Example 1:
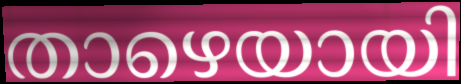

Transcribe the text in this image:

താഴെയായി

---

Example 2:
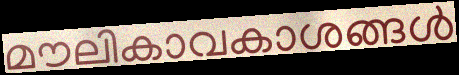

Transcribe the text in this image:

മൗലികാവകാശങ്ങൾ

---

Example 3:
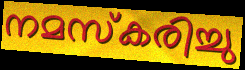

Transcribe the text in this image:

നമസ്കരിച്ചു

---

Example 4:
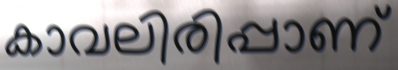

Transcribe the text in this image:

കാവലിരിപ്പാണ്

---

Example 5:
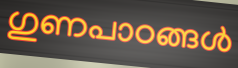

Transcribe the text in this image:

ഗുണപാഠങ്ങൾ